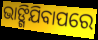
ଭାଙ୍ଗିଯିବାପରେ